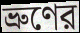
ভ্রুণের